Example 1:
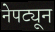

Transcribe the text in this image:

नेपट्यून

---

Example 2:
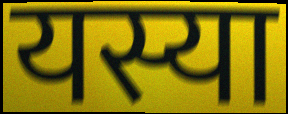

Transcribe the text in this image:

यस्या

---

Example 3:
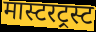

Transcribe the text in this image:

मास्टरट्रस्ट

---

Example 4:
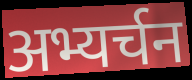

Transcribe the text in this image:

अभ्यर्चन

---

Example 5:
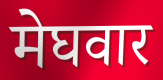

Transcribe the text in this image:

मेघवार